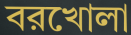
বরখোলা